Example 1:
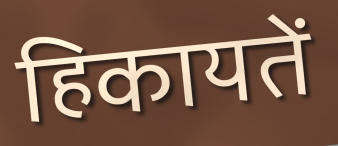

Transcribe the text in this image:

हिकायतें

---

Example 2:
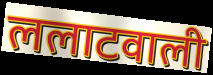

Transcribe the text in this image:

ललाटवाली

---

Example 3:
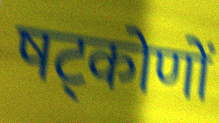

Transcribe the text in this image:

षट्कोणों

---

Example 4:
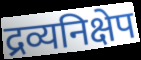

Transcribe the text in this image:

द्रव्यनिक्षेप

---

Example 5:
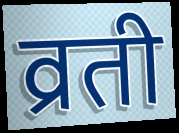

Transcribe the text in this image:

व्रती